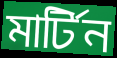
মার্টিন